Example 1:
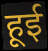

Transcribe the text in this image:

हूई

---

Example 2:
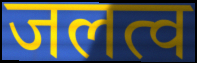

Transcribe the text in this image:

जलत्व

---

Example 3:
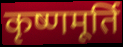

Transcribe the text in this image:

कृष्णमूर्ति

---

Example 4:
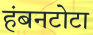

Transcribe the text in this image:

हंबनटोटा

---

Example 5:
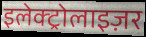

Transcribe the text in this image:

इलेक्ट्रोलाइज़र